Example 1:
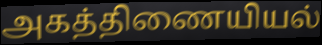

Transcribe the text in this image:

அகத்திணையியல்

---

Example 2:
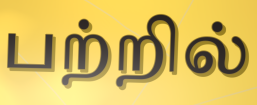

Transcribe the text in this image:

பற்றில்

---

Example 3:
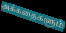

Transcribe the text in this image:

அக்கதைகளும்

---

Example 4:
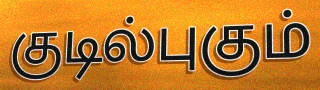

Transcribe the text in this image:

குடில்புகும்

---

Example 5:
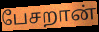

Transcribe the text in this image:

பேசறான்